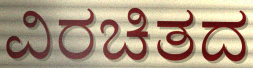
ವಿರಚಿತದ